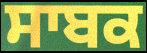
ਸਾਬਕ